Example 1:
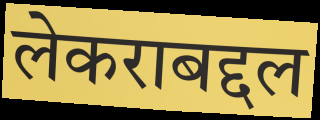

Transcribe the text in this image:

लेकराबद्दल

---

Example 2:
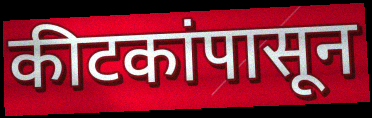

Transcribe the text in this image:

कीटकांपासून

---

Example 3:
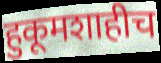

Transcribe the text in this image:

हुकूमशाहीच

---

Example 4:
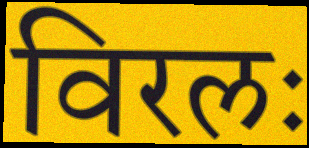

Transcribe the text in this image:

विरलः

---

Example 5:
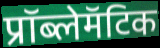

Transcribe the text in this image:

प्रॉब्लेमॅटिक